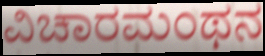
ವಿಚಾರಮಂಥನ